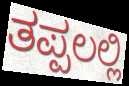
ತಪ್ಪಲಲ್ಲಿ